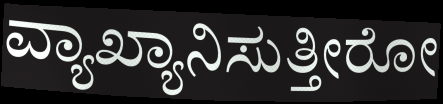
ವ್ಯಾಖ್ಯಾನಿಸುತ್ತೀರೋ